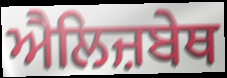
ਐਲਿਜ਼ਬੇਥ